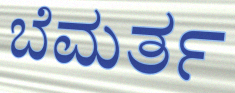
ಬೆಮರ್ತ